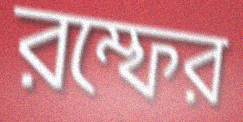
রম্ফের